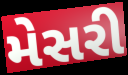
મેસરી